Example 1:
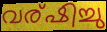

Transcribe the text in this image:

വര്ഷിച്ചു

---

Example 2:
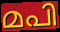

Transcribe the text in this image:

മപി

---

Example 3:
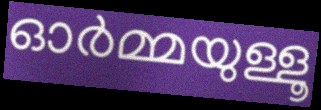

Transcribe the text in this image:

ഓർമ്മയുള്ളൂ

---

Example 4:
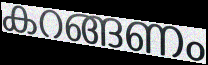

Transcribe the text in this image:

കറങ്ങണം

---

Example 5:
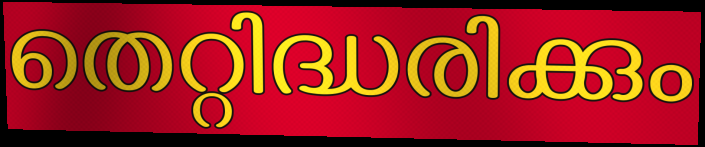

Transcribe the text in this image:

തെറ്റിദ്ധരിക്കും